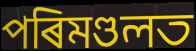
পৰিমণ্ডলত